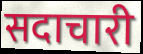
सदाचारी